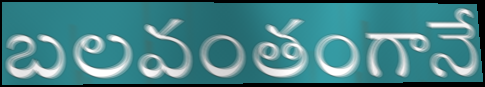
బలవంతంగానే